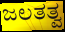
ಜಲತತ್ವ